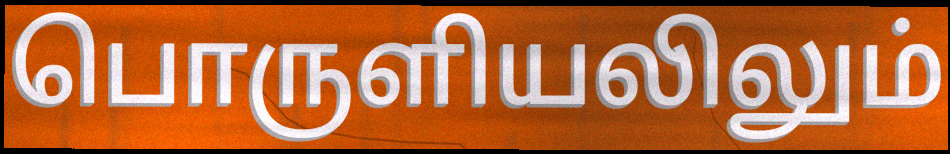
பொருளியலிலும்